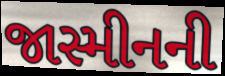
જાસ્મીનની